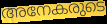
അനേകരുടെ